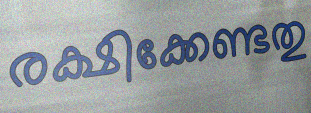
രക്ഷിക്കേണ്ടതു